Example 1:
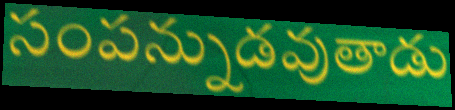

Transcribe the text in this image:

సంపన్నుడవుతాడు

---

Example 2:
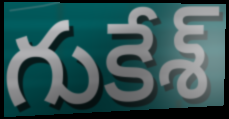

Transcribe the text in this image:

గుకేశ్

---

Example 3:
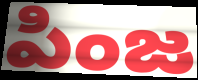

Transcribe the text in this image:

పింజ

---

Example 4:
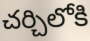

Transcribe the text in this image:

చర్చిలోకి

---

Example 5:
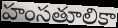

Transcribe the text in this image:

హంసతూలికా